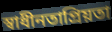
স্বাধীনতাপ্রিয়তা